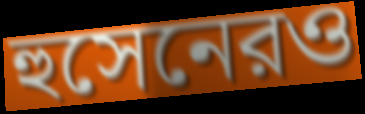
হুসেনেরও